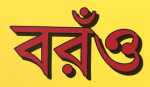
বরঁও